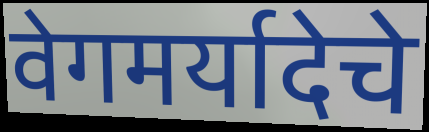
वेगमर्यादेचे